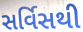
સર્વિસથી